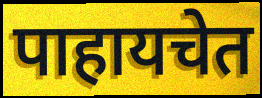
पाहायचेत